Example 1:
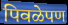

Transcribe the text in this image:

पिवळेपण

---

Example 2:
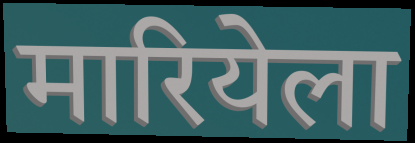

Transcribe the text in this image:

मारियेला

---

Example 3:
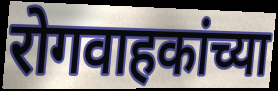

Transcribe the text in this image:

रोगवाहकांच्या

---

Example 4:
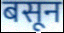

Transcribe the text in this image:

बसून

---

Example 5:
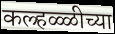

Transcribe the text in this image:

कल्हळ्ळीच्या